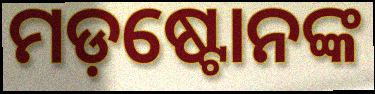
ମଡ଼ଷ୍ଟୋନଙ୍କ